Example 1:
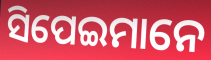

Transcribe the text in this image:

ସିପେଇମାନେ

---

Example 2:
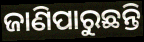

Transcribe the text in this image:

ଜାଣିପାରୁଛନ୍ତି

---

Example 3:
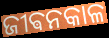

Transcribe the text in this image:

ଜୀଵନକାଳ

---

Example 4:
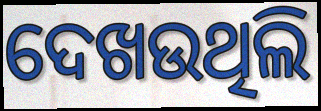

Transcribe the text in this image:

ଦେଖଉଥିଲି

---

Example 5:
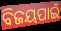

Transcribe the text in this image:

ବିଜୟପାଇଁ